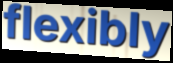
flexibly